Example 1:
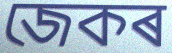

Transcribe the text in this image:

জেকৰ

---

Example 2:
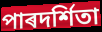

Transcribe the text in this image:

পাৰদৰ্শিতা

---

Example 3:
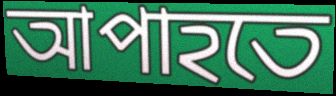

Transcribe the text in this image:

আপাহতে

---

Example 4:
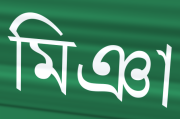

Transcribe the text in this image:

মিঞা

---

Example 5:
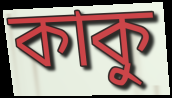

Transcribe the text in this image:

কাকু